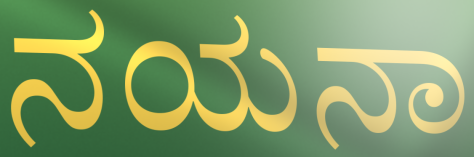
ನಯನಾ